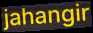
jahangir